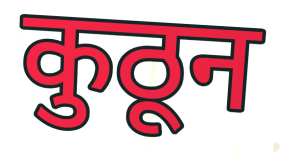
कुठून